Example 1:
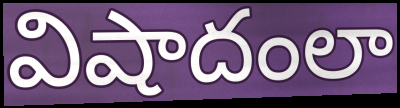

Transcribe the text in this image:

విషాదంలా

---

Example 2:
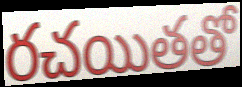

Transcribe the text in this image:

రచయితతో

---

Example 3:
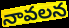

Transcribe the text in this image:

నావలన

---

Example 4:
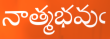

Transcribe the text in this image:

నాత్మభవుఁ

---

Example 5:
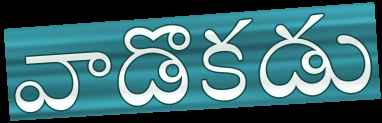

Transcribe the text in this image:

వాడొకడు